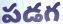
పడగ